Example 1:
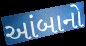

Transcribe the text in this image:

આંબાનો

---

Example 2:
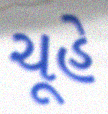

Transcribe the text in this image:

ચૂહે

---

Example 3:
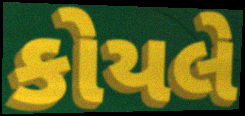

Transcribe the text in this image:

કોયલે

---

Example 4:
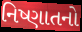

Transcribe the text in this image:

નિષ્ણાતનો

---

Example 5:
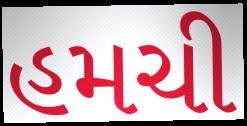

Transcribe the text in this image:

હમચી